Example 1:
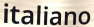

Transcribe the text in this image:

italiano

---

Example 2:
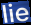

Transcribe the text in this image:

lie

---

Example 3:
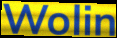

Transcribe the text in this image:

Wolin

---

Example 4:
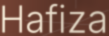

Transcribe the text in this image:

Hafiza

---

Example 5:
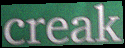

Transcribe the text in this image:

creak